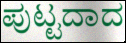
ಪುಟ್ಟದಾದ